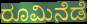
ರೂಮಿನೆಡೆ